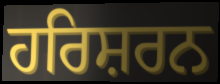
ਹਰਿਸ਼ਰਨ